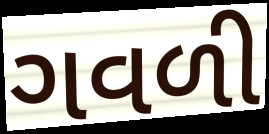
ગવળી